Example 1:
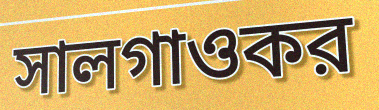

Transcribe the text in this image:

সালগাওকর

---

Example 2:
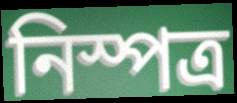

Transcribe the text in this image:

নিস্পত্র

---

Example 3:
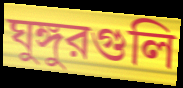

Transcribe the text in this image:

ঘুঙ্গুরগুলি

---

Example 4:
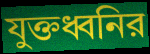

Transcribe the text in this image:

যুক্তধ্বনির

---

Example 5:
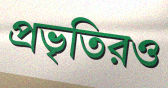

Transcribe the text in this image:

প্রভৃতিরও